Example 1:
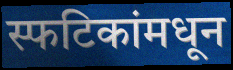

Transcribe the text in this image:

स्फटिकांमधून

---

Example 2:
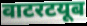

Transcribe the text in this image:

वाटरटयूब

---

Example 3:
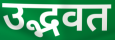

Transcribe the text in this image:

उद्भवत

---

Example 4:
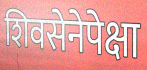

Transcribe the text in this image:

शिवसेनेपेक्षा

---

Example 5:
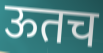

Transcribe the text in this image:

ऊतच